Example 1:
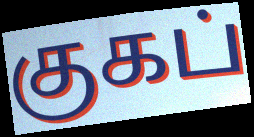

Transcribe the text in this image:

குகப்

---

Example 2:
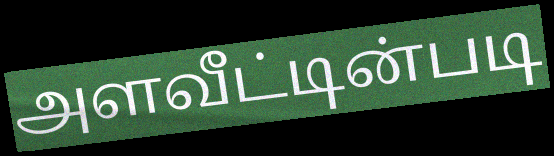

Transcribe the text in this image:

அளவீட்டின்படி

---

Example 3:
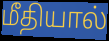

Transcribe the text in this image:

மீதியால்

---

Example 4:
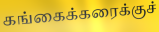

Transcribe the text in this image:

கங்கைக்கரைக்குச்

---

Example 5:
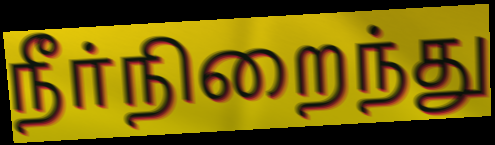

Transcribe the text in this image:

நீர்நிறைந்து